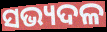
ସଭ୍ୟଦଳ